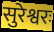
सुरेश्वरः